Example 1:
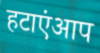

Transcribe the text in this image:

हटाएंआप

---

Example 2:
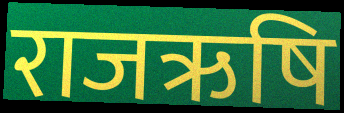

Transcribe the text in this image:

राजऋषि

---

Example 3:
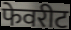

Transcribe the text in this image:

फेवरीट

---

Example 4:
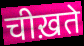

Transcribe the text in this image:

चीख़ते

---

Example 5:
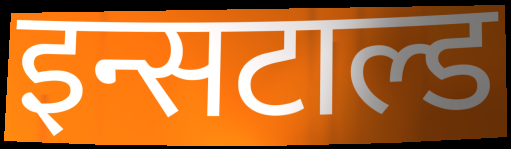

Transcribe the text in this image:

इन्सटाल्ड